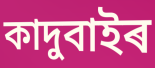
কাদুবাইৰ